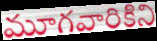
మూగవారికిని